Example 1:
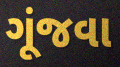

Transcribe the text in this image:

ગૂંજવા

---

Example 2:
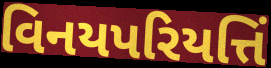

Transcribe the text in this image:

વિનયપરિયત્તિં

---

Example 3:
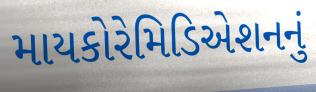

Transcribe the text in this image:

માયકોરેમિડિએશનનું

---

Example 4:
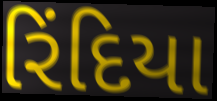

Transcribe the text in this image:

રિંદિયા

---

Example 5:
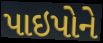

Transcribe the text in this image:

પાઇપોને